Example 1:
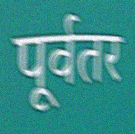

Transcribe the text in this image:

पूर्वतर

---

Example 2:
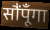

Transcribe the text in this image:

सौंपूँगा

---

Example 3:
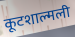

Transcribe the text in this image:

कूटशाल्मली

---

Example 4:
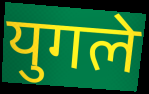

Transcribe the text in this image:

युगले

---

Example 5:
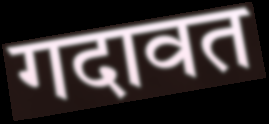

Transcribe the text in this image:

गदावत